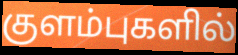
குளம்புகளில்